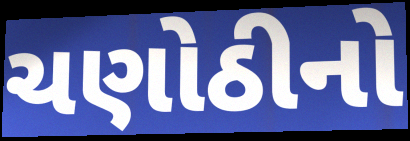
ચણોઠીનો